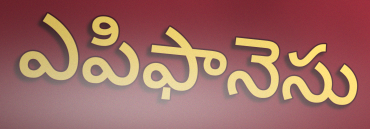
ఎపిఫానెసు